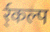
र्र्कल्प